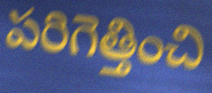
పరిగెత్తించి